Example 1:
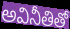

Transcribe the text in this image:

అవినీతితో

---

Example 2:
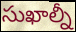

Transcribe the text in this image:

సుఖాల్నీ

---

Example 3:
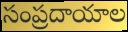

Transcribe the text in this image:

సంప్రదాయాల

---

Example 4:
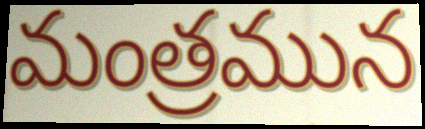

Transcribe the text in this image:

మంత్రమున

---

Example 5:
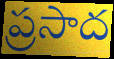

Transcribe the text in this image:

ప్రసాద